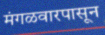
मंगळवारपासून